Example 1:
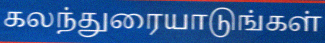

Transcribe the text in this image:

கலந்துரையாடுங்கள்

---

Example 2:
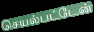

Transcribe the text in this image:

செயல்பட்டேன்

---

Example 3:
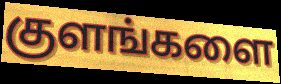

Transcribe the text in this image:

குளங்களை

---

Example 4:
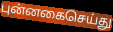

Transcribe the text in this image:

புன்னகைசெய்து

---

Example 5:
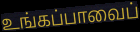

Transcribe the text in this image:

உங்கப்பாவைப்